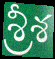
శ్రీశ